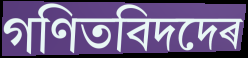
গণিতবিদদেৰ